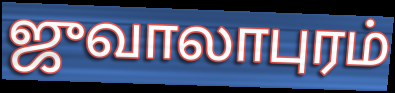
ஜுவாலாபுரம்